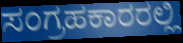
ಸಂಗ್ರಹಕಾರರಲ್ಲಿ